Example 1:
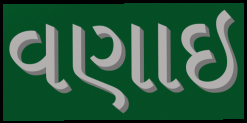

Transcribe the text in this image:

વણાઇ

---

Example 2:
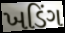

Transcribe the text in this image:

ખડિંગ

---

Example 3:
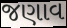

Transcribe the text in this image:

જણાવ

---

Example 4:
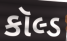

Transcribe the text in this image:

કૉલ્ડ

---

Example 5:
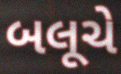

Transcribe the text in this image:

બલૂચે